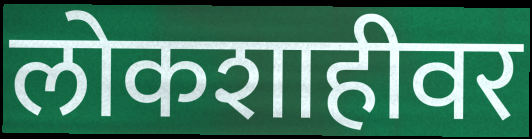
लोकशाहीवर